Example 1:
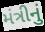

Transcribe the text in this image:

મંત્રીનું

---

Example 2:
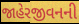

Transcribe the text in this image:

જાહેરજીવનની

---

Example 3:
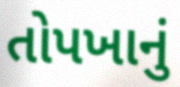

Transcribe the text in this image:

તોપખાનું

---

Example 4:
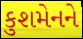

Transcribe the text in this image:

કુશમેનને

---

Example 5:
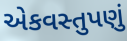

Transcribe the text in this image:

એકવસ્તુપણું